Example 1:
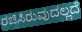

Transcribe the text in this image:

ರಚಿಸಿರುವುದಲ್ಲದೆ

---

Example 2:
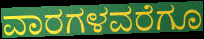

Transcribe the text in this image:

ವಾರಗಳವರೆಗೂ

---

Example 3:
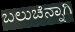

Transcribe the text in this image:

ಬಲುಚೆನ್ನಾಗಿ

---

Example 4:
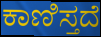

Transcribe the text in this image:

ಕಾಣಿಸ್ತದೆ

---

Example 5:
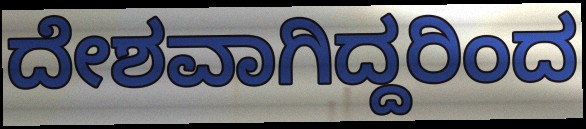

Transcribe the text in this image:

ದೇಶವಾಗಿದ್ದರಿಂದ